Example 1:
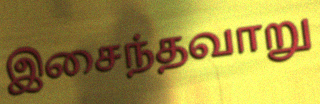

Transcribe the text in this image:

இசைந்தவாறு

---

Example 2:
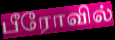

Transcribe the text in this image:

பீரோவில்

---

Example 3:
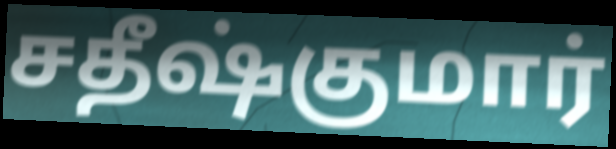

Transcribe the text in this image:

சதீஷ்குமார்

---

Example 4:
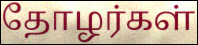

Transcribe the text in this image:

தோழர்கள்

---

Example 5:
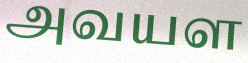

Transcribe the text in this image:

அவயள